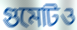
গুমোটও